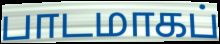
பாடமாகப்